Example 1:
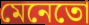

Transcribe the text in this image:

মেনেতো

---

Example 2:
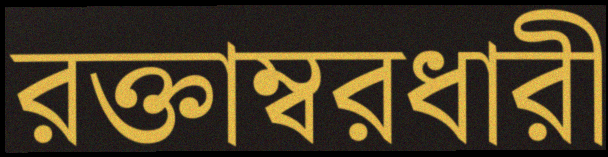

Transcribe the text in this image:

রক্তাম্বরধারী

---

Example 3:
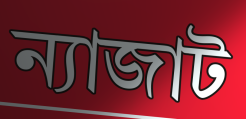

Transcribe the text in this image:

ন্যাজাট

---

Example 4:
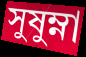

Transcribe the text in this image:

সুষুম্না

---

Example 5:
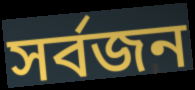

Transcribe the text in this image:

সর্বজন